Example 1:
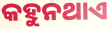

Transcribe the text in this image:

କହୁନଥାଏ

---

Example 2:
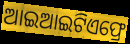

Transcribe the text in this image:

ଆଇଆଇଟିଏଫ୍ରେ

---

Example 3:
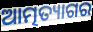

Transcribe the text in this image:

ଆତ୍ମତ୍ୟାଗର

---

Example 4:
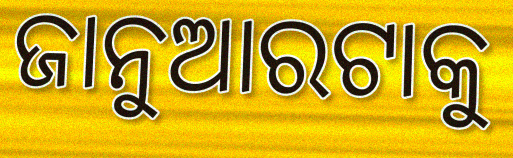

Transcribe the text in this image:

ଜାନୁଆରଟାକୁ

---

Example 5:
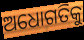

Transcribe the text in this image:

ଅଧୋଗତିକୁ